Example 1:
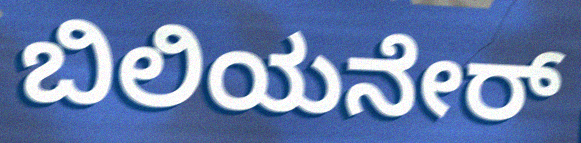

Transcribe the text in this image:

ಬಿಲಿಯನೇರ್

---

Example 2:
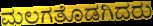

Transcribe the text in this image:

ಮಲಗತೊಡಗಿದರು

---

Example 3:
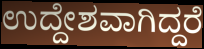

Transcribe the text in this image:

ಉದ್ದೇಶವಾಗಿದ್ದರೆ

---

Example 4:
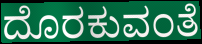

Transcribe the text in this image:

ದೊರಕುವಂತೆ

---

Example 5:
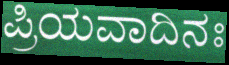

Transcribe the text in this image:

ಪ್ರಿಯವಾದಿನಃ